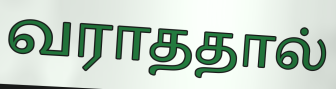
வராததால்